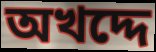
অখদ্দে